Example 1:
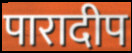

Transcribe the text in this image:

पारादीप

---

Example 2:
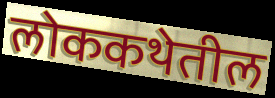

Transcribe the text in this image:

लोककथेतील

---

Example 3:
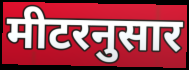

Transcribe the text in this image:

मीटरनुसार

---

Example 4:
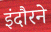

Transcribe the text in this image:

इंदौरने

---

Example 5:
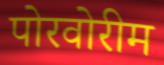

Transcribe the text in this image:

पोरवोरीम